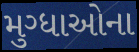
મુગ્ધાઓના